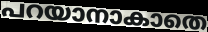
പറയാനാകാതെ